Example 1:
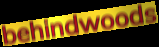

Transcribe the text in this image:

behindwoods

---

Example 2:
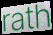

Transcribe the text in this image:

rath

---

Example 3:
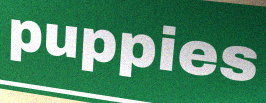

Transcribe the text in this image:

puppies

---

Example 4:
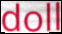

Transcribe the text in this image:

doll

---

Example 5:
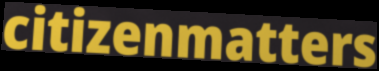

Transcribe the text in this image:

citizenmatters